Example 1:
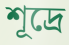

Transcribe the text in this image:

শূদ্রে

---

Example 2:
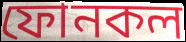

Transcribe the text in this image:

ফোনকল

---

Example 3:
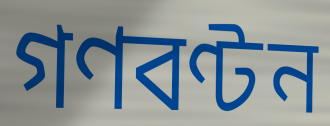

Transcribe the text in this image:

গণবণ্টন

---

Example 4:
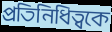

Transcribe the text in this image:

প্রতিনিধিত্বকে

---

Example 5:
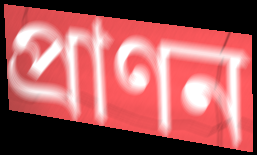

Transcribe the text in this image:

প্রাণন